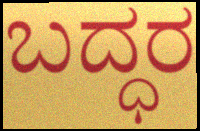
ಬದ್ಧರ